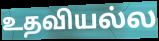
உதவியல்ல